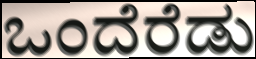
ಒಂದೆರೆಡು